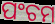
ପଂଚମ